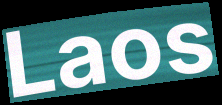
Laos